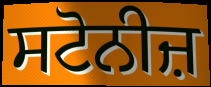
ਸਟੋਨੀਜ਼